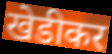
खेडीकर